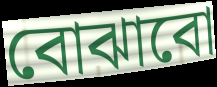
বোঝাবো